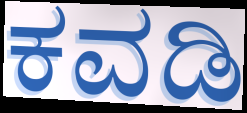
ಕವಡಿ